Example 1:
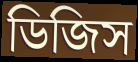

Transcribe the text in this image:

ডিজিস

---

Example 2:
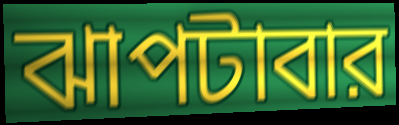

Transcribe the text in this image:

ঝাপটাবার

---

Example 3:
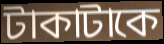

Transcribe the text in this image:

টাকাটাকে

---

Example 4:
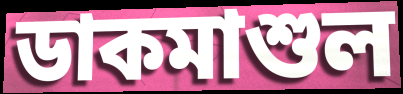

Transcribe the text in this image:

ডাকমাশুল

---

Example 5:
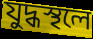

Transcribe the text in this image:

যুদ্ধস্থলে